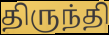
திருந்தி